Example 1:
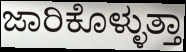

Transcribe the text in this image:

ಜಾರಿಕೊಳ್ಳುತ್ತಾ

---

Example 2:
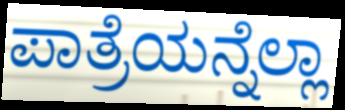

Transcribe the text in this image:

ಪಾತ್ರೆಯನ್ನೆಲ್ಲಾ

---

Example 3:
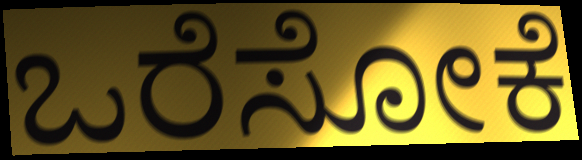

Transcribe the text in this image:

ಒರೆಸೋಕೆ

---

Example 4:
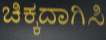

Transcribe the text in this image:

ಚಿಕ್ಕದಾಗಿಸಿ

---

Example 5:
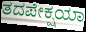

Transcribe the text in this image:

ತದಪೇಕ್ಷಯಾ